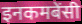
इनकमबेंसी